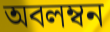
অবলম্বন